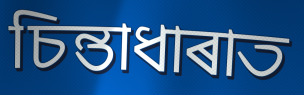
চিন্তাধাৰাত